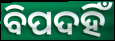
ବିପଦହିଁ